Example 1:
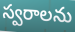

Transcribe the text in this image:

స్వరాలను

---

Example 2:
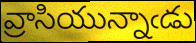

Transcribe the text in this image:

వ్రాసియున్నాఁడు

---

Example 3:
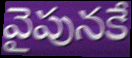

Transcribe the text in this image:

వైపునకే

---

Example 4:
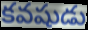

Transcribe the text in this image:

కవషుడు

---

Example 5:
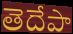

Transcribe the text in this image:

తెదేపా